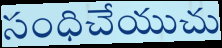
సంధిచేయుచు